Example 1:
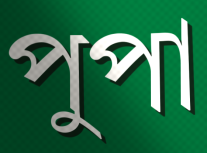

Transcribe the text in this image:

পুপা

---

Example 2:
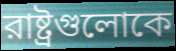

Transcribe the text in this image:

রাষ্ট্রগুলোকে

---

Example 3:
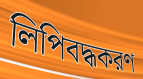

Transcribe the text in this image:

লিপিবদ্ধকরণ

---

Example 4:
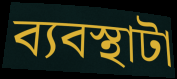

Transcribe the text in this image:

ব্যবস্থাটা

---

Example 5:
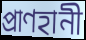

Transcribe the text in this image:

প্রাণহানী